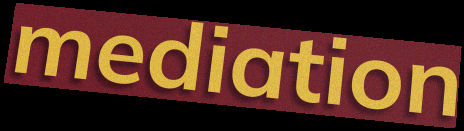
mediation